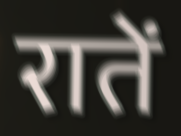
रातें